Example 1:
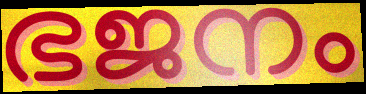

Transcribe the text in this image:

ഭജനം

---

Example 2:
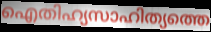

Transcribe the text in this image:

ഐതിഹ്യസാഹിത്യത്തെ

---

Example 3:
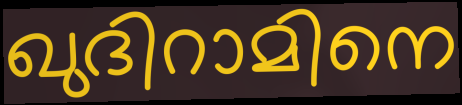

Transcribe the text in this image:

ഖുദിറാമിനെ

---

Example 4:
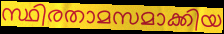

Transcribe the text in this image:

സ്ഥിരതാമസമാക്കിയ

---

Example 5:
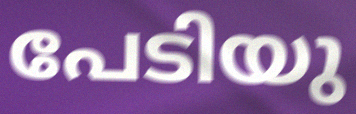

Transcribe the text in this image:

പേടിയു